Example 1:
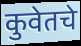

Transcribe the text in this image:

कुवेतचे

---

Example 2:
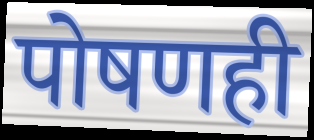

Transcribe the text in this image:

पोषणही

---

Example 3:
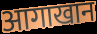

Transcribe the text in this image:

आगाखान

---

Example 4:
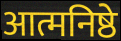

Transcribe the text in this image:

आत्मनिष्ठे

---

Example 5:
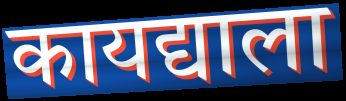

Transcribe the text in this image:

कायद्याला